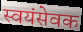
स्वयंसेवक